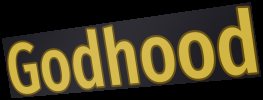
Godhood